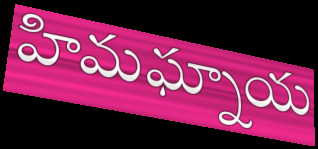
హిమఘ్నాయ